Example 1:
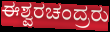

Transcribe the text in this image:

ಈಶ್ವರಚಂದ್ರರು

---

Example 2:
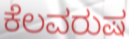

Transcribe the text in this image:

ಕೆಲವರುಷ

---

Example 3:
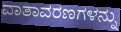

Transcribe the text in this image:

ವಾತಾವರಣಗಳನ್ನು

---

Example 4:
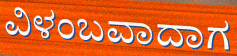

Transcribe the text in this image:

ವಿಳಂಬವಾದಾಗ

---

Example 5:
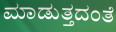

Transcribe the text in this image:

ಮಾಡುತ್ತದಂತೆ